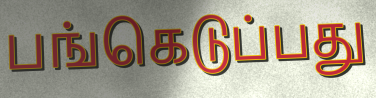
பங்கெடுப்பது